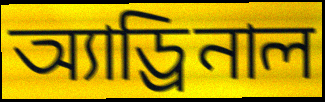
অ্যাড্রিনাল